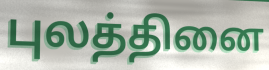
புலத்தினை